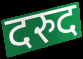
दरुद